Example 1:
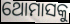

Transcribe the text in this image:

ଥୋମାସକୁ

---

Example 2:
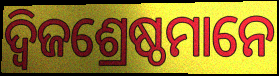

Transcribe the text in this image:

ଦ୍ୱିଜଶ୍ରେଷ୍ଠମାନେ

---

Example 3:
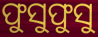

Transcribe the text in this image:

ଫୁସୁଫୁସୁ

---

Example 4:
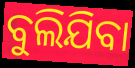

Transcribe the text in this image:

ବୁଲିଯିବା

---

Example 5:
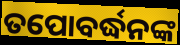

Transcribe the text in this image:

ତପୋବର୍ଦ୍ଧନଙ୍କ